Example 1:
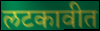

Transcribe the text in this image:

लटकावीत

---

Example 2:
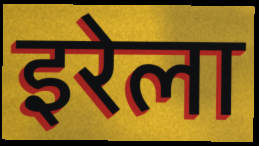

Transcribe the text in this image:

इरेला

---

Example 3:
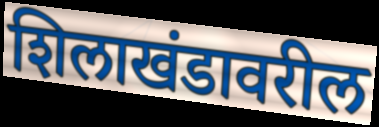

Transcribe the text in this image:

शिलाखंडावरील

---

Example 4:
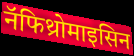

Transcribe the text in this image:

नॅफिथ्रोमाइसिन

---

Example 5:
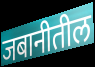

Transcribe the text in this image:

जबानीतील